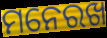
ମନେରଖ